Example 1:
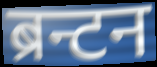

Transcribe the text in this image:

ब्रन्टन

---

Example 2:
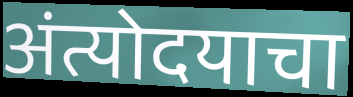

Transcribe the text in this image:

अंत्योदयाचा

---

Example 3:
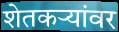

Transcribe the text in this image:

शेतकऱ्यांवर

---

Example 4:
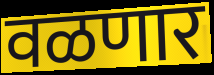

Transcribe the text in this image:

वळणार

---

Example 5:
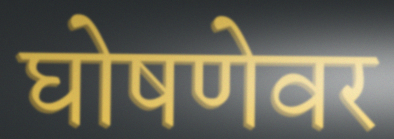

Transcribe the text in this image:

घोषणेवर